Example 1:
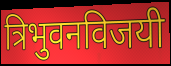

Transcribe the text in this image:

त्रिभुवनविजयी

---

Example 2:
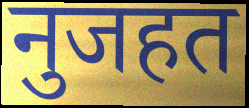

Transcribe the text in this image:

नुजहत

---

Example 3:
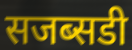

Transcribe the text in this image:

सजब्सडी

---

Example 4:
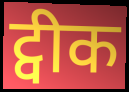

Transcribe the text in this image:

ट्वीक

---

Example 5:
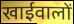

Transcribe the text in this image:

खाईवालों